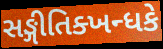
સઙ્ગીતિક્ખન્ધકે